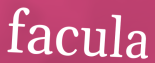
facula